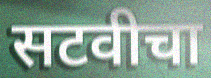
सटवीचा